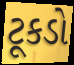
ટૂકડો